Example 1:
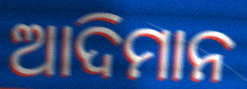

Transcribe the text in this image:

ଆଦିମାନ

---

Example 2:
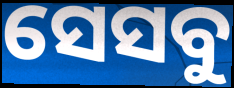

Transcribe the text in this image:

ସେସବୁ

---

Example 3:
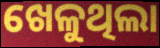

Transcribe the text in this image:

ଖେଳୁଥିଲା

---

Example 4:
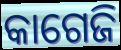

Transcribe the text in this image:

କାଗେଜି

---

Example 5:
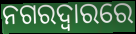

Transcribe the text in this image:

ନଗରଦ୍ୱାରରେ